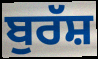
ਬੁਰੱਸ਼